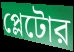
প্লেটোর